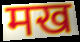
मख